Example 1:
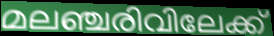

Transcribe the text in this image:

മലഞ്ചരിവിലേക്ക്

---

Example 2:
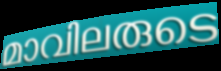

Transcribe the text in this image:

മാവിലരുടെ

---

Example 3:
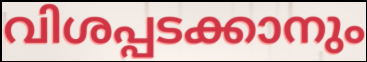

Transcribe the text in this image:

വിശപ്പടക്കാനും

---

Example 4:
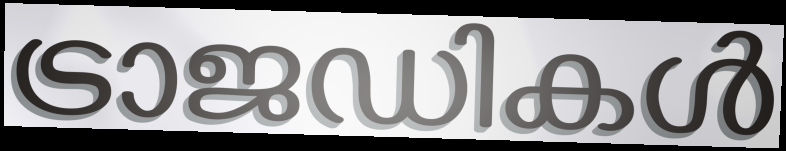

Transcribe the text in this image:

ട്രാജഡികൾ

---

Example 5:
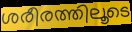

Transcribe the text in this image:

ശരീരത്തിലൂടെ